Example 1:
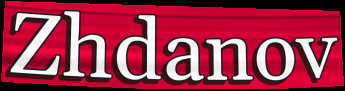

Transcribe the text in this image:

Zhdanov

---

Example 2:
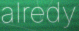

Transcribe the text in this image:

alredy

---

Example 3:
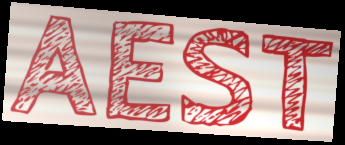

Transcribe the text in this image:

AEST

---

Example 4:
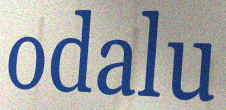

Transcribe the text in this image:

odalu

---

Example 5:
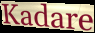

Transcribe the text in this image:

Kadare